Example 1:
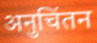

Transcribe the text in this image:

अनुचिंतन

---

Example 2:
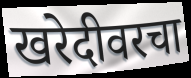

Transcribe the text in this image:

खरेदीवरचा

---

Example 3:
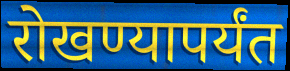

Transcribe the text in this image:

रोखण्यापर्यंत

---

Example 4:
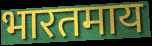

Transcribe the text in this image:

भारतमाय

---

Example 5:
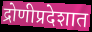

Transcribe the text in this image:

द्रोणीप्रदेशात